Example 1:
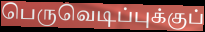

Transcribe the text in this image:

பெருவெடிப்புக்குப்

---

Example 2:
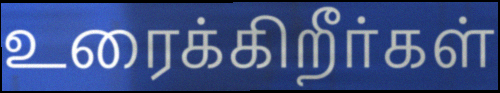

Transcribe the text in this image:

உரைக்கிறீர்கள்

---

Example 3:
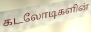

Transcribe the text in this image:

கடலோடிகளின்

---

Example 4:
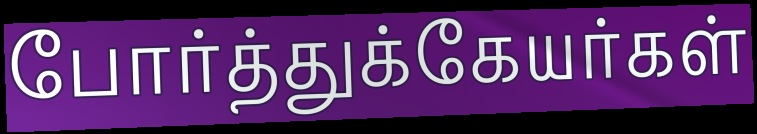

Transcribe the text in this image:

போர்த்துக்கேயர்கள்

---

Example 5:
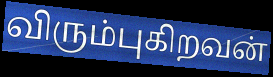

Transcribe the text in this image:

விரும்புகிறவன்